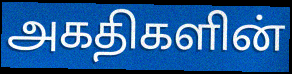
அகதிகளின்